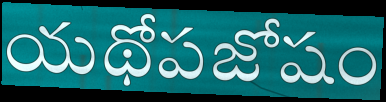
యథోపజోషం